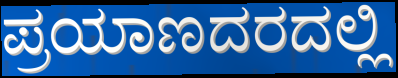
ಪ್ರಯಾಣದರದಲ್ಲಿ